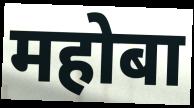
महोबा